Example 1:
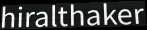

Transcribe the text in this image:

hiralthaker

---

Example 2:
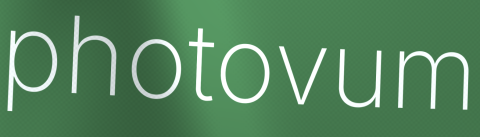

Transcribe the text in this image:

photovum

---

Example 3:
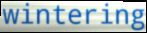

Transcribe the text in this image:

wintering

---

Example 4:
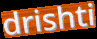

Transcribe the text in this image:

drishti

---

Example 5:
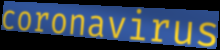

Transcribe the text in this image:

coronavirus